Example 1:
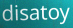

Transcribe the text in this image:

disatoy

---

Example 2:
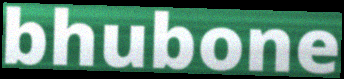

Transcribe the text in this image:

bhubone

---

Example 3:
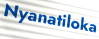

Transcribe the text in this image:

Nyanatiloka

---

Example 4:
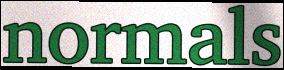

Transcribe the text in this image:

normals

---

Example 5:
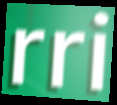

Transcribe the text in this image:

rri